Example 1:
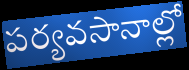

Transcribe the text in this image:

పర్యవసానాల్లో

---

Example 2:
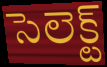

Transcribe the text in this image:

సెలెక్ట్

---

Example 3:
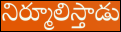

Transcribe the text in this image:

నిర్మూలిస్తాడు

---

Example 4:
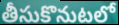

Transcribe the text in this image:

తీసుకొనుటలో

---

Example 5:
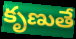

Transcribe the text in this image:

కృణుతే